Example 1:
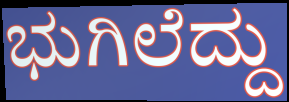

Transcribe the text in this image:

ಭುಗಿಲೆದ್ದು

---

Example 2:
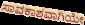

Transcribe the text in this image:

ಸಾವಕಾಶವಾಗಿಯೇ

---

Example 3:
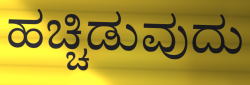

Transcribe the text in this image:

ಹಚ್ಚಿಡುವುದು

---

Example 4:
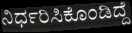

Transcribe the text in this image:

ನಿರ್ಧರಿಸಿಕೊಂಡಿದ್ದೆ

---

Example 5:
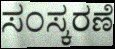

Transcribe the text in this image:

ಸಂಸ್ಕರಣೆ